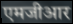
एमजीआर